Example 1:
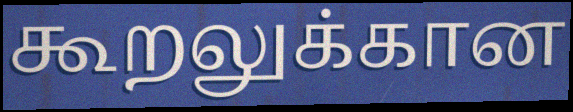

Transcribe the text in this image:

கூறலுக்கான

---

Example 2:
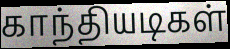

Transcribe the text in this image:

காந்தியடிகள்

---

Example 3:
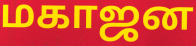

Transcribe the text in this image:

மகாஜன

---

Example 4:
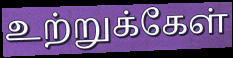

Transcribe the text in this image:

உற்றுக்கேள்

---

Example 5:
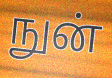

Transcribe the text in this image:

நுன்